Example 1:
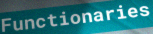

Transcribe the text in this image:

Functionaries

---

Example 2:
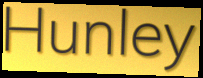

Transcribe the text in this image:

Hunley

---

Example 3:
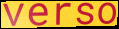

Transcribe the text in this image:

verso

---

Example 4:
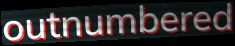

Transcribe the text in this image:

outnumbered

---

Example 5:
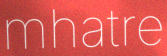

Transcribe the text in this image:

mhatre